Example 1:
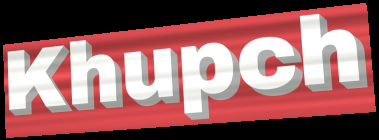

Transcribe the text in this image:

Khupch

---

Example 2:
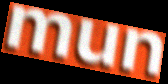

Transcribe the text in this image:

mun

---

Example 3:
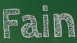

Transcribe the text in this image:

Fain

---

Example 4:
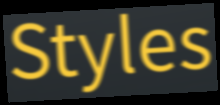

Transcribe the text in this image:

Styles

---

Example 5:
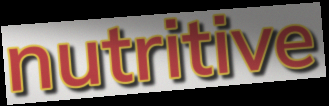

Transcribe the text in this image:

nutritive